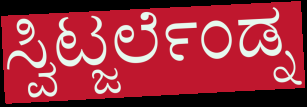
ಸ್ವಿಟ್ಜರ್ಲೆಂಡ್ನ